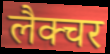
लैक्चर